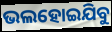
ଭଲହୋଇଯିବୁ